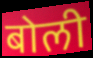
बोली